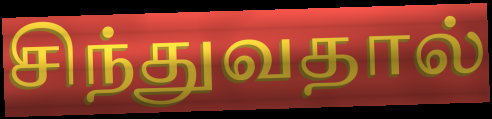
சிந்துவதால்